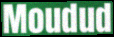
Moudud